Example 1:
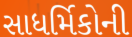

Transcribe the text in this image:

સાધર્મિકોની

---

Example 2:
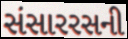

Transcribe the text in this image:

સંસારરસની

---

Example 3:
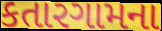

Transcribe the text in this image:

કતારગામના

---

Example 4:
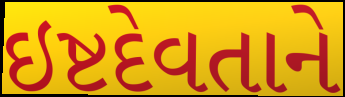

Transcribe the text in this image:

ઇષ્ટદેવતાને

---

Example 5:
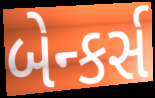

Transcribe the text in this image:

બેન્કર્સ